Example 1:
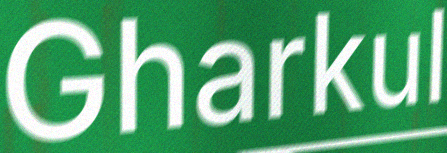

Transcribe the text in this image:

Gharkul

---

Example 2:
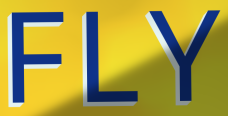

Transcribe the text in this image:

FLY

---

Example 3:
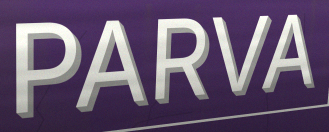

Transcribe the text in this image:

PARVA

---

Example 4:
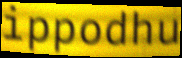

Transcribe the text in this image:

ippodhu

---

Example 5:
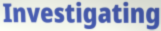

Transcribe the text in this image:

Investigating